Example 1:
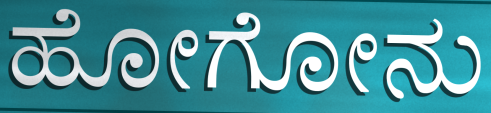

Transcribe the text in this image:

ಹೋಗೋನು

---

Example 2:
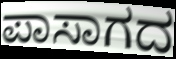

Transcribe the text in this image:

ಪಾಸಾಗದ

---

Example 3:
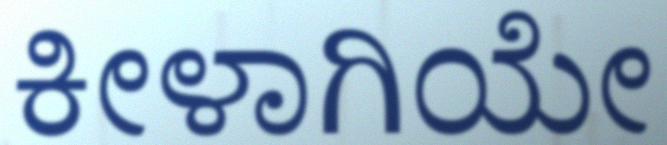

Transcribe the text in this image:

ಕೀಳಾಗಿಯೇ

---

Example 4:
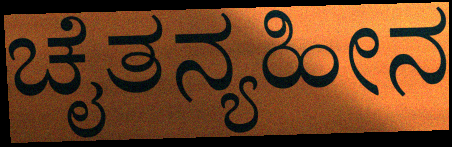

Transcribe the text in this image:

ಚೈತನ್ಯಹೀನ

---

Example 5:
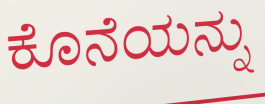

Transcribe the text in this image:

ಕೊನೆಯನ್ನು